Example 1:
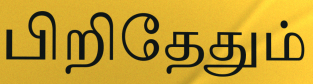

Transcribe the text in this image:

பிறிதேதும்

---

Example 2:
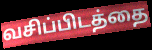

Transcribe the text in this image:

வசிப்பிடத்தை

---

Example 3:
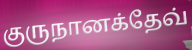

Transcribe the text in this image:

குருநானக்தேவ்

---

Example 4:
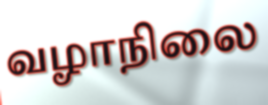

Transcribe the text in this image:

வழாநிலை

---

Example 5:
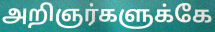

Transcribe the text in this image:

அறிஞர்களுக்கே